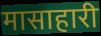
मासाहारी